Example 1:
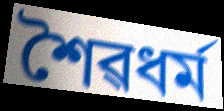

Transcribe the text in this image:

শৈৱধৰ্ম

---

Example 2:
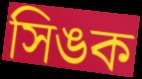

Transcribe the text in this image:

সিঙক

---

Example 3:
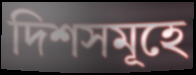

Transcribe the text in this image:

দিশসমূহে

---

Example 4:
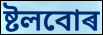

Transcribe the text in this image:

ষ্টলবোৰ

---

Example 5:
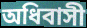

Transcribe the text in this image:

অধিবাসী